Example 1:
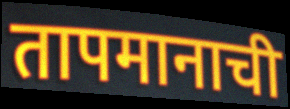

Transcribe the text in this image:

तापमानाची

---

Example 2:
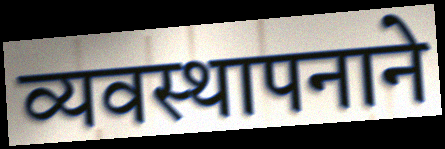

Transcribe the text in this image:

व्यवस्थापनाने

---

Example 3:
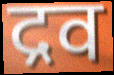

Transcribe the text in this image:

द्रव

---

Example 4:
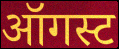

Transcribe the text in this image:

ऑगस्ट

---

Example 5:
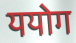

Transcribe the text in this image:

ययोग